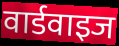
वार्डवाइज